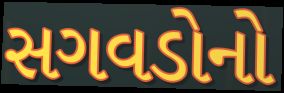
સગવડોનો